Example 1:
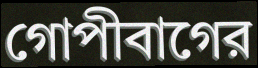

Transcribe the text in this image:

গোপীবাগের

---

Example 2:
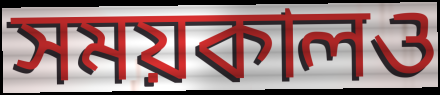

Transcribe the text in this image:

সময়কালও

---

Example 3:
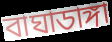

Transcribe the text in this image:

বাঘাডাঙ্গা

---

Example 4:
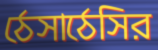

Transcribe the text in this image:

ঠেসাঠেসির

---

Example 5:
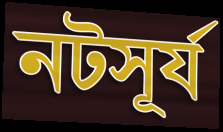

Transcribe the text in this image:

নটসূর্য